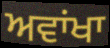
ਅਵਾਂਖਾ